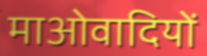
माओवादियों